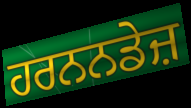
ਹਰਨਨਡੇਜ਼